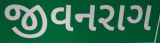
જીવનરાગ